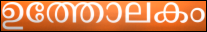
ഉത്തോലകം